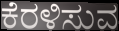
ಕೆರಳಿಸುವ